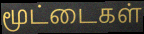
மூட்டைகள்